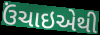
ઉંચાઇએથી